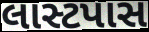
લાસ્ટપાસ